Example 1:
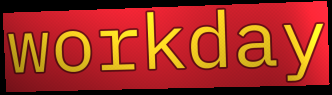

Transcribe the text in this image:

workday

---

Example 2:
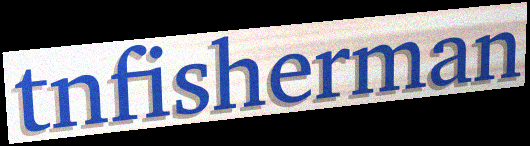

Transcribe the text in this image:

tnfisherman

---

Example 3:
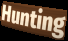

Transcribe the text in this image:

Hunting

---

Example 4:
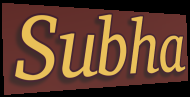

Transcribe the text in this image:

Subha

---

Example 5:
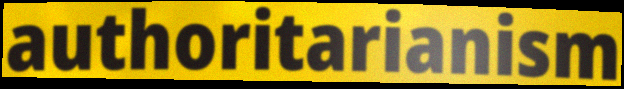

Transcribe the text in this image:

authoritarianism